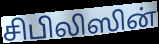
சிபிலிஸின்